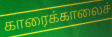
காரைக்காலைச்